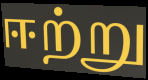
ஈற்று